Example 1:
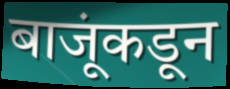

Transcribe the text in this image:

बाजूंकडून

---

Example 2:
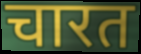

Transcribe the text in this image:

चारत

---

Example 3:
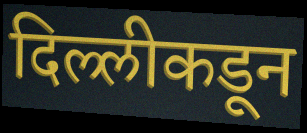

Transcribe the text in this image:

दिल्लीकडून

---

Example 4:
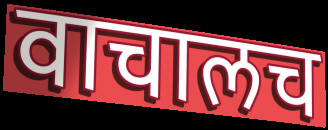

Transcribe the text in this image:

वाचालच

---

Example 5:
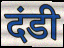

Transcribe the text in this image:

दंडी